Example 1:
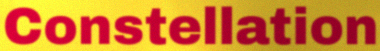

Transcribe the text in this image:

Constellation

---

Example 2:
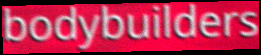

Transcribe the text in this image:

bodybuilders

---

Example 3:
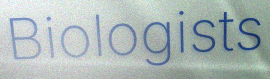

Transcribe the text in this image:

Biologists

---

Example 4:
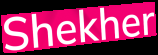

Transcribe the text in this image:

Shekher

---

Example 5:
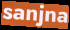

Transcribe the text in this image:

sanjna